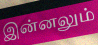
இன்னலும்